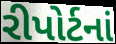
રીપોર્ટનાં